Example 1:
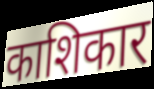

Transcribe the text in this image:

काशिकार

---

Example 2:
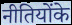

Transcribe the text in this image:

नीतियोंके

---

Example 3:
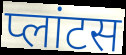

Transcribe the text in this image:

प्लांटस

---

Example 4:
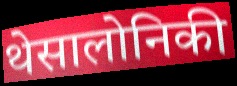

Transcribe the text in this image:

थेसालोनिकी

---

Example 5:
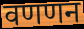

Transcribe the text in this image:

वणणन